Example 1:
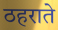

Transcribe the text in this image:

ठहराते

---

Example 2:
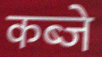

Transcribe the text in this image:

कब्‍जे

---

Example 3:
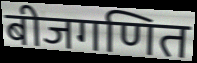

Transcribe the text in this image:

बीजगणित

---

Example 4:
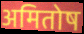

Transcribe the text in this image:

अमितोष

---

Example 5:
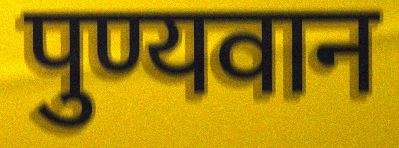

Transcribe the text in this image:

पुण्यवान